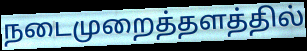
நடைமுறைத்தளத்தில்